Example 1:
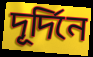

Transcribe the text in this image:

দূর্দিনে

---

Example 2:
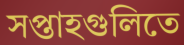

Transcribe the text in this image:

সপ্তাহগুলিতে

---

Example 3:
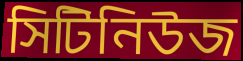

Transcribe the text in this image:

সিটিনিউজ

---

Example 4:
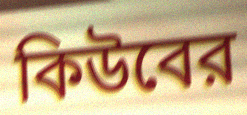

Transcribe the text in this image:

কিউবের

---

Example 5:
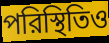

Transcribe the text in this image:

পরিস্থিতিও